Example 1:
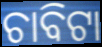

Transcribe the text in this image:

ଚାବିଟା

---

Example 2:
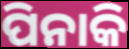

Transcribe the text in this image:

ପିନାକି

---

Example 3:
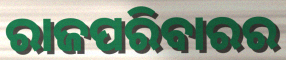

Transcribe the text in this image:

ରାଜପରିବାରର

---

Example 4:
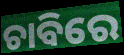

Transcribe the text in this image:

ଚାବିରେ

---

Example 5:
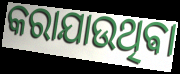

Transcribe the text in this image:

କରାଯାଉଥିଵା